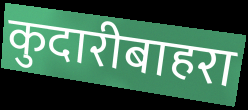
कुदारीबाहरा